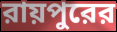
রায়পুরের